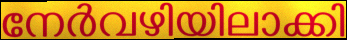
നേർവഴിയിലാക്കി